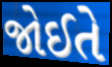
જોઈતે